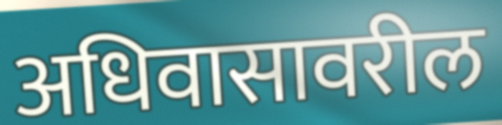
अधिवासावरील